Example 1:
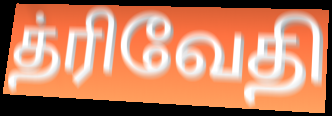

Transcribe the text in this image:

த்ரிவேதி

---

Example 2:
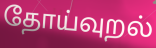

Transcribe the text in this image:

தோய்வுறல்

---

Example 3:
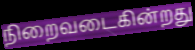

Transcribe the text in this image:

நிறைவடைகின்றது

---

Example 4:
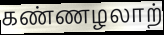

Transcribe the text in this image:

கண்ணழலாற்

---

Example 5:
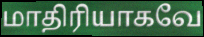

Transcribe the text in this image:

மாதிரியாகவே